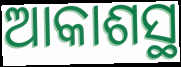
ଆକାଶସ୍ଥ